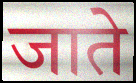
जाते